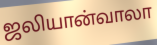
ஜலியான்வாலா